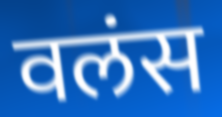
वलंस